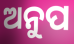
ଅନୁପ